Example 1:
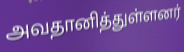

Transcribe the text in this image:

அவதானித்துள்ளனர்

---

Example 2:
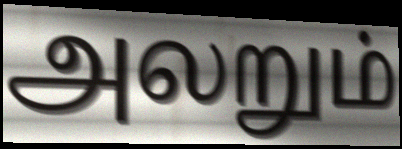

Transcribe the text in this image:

அலறும்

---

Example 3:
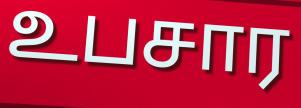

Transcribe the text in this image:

உபசார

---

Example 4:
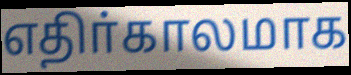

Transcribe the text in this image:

எதிர்காலமாக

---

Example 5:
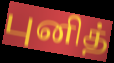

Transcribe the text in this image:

புனித்